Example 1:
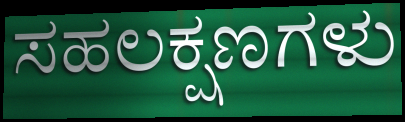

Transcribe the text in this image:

ಸಹಲಕ್ಷಣಗಳು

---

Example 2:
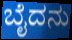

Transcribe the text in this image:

ಬೈದನು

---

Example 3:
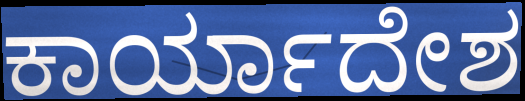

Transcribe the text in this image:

ಕಾರ್ಯಾದೇಶ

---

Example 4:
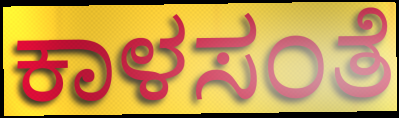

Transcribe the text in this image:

ಕಾಳಸಂತೆ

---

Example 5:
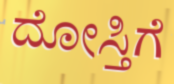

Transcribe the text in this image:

ದೋಸ್ತಿಗೆ